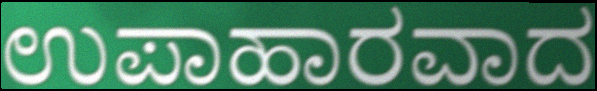
ಉಪಾಹಾರವಾದ